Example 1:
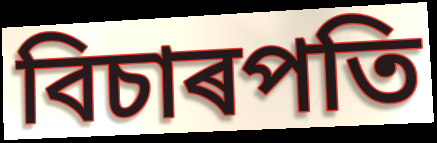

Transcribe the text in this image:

বিচাৰপতি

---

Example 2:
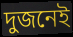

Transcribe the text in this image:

দুজনেই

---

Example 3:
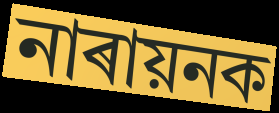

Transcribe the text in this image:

নাৰায়নক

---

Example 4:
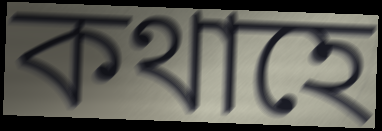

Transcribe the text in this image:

কথাহে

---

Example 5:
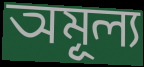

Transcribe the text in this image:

অমূল্য